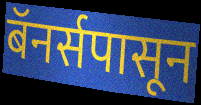
बॅनर्सपासून